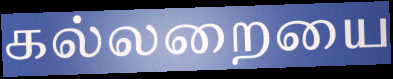
கல்லறையை